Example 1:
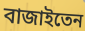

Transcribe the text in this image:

বাজাইতেন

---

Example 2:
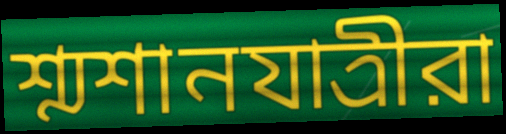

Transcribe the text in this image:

শ্মশানযাত্রীরা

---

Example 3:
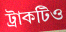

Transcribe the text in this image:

ট্রাকটিও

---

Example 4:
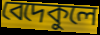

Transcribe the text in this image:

বেদেকুলে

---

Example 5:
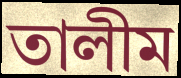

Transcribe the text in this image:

তালীম